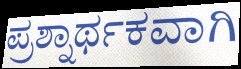
ಪ್ರಶ್ನಾರ್ಥಕವಾಗಿ